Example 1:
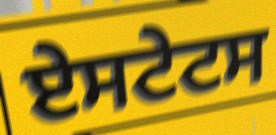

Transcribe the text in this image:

ਏਸਟੇਟਸ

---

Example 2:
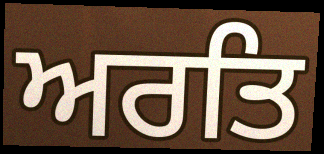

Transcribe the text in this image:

ਅਰਤਿ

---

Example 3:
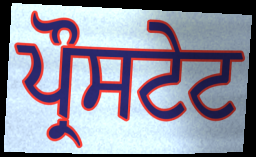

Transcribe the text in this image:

ਪ੍ਰੌਸਟੇਟ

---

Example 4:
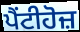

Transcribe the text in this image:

ਪੈਂਟੀਹੋਜ਼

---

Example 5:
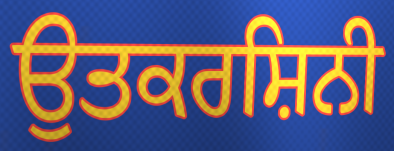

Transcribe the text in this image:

ਉਤਕਰਸ਼ਿਨੀ